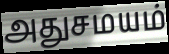
அதுசமயம்